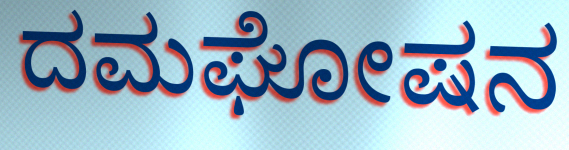
ದಮಘೋಷನ